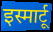
इस्मार्टू